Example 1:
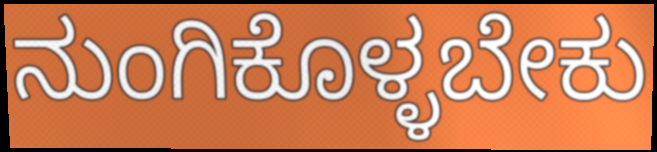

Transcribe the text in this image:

ನುಂಗಿಕೊಳ್ಳಬೇಕು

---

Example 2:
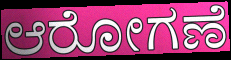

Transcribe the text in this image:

ಆರೋಗಣೆ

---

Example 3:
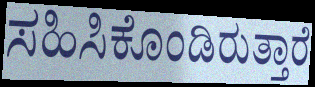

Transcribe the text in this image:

ಸಹಿಸಿಕೊಂಡಿರುತ್ತಾರೆ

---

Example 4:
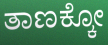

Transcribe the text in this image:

ತಾಣಕ್ಕೋ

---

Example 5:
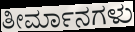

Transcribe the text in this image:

ತೀರ್ಮಾನಗಳು